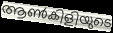
ആൺകിളിയുടെ